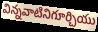
విన్నవాటినిగూర్చియు